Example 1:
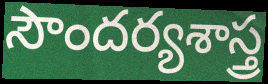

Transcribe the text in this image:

సౌందర్యశాస్త్ర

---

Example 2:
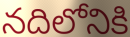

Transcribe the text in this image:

నదిలోనికి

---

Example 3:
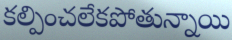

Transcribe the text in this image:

కల్పించలేకపోతున్నాయి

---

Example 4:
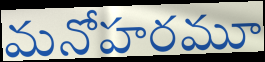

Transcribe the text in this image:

మనోహరమూ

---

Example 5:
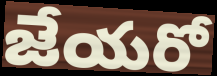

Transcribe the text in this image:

జేయరో